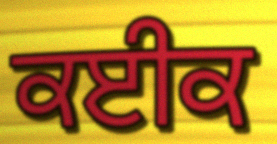
ਕਈਕ